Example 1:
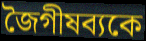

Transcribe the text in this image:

জৈগীষব্যকে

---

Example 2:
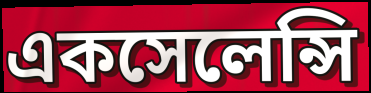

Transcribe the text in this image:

একসেলেন্সি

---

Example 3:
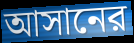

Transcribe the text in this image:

আসানের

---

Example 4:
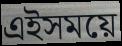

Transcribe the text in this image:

এইসময়ে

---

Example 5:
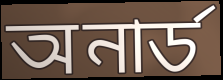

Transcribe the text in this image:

অনার্ড